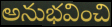
అనుభవించి